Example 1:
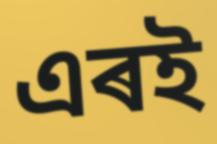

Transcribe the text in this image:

এৰই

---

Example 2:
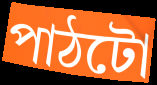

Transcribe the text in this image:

পাঠটো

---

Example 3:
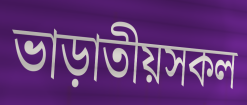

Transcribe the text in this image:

ভাড়াতীয়সকল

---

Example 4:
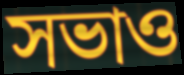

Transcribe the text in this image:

সভাও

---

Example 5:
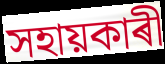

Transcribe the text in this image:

সহায়কাৰী